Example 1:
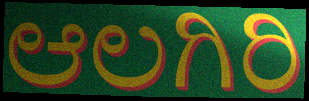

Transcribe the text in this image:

ಆಲಗಿರಿ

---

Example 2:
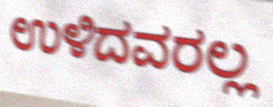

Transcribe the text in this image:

ಉಳಿದವರಲ್ಲ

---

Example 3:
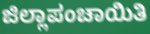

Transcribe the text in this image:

ಜಿಲ್ಲಾಪಂಚಾಯಿತಿ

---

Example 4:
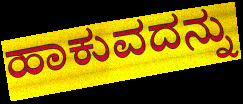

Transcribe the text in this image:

ಹಾಕುವದನ್ನು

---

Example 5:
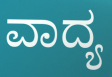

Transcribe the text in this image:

ವಾದ್ಯ